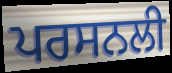
ਪਰਸਨਲੀ